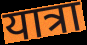
यात्रा